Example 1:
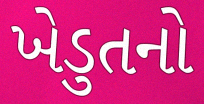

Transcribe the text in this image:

ખેડુતનો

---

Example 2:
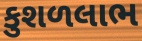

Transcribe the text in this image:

કુશળલાભ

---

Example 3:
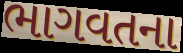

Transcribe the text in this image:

ભાગવતના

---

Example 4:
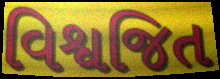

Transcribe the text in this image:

વિશ્વજિત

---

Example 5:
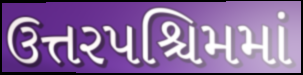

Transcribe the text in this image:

ઉત્તરપશ્ચિમમાં